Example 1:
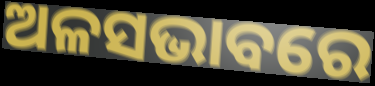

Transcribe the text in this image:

ଅଳସଭାବରେ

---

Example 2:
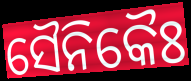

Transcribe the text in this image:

ସୈନିକୈଃ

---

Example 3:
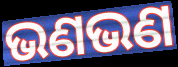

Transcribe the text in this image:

ଭଣଭଣ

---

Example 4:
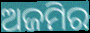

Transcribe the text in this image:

ଅଜମିର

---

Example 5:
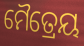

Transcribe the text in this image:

ମୈତ୍ରେୟ